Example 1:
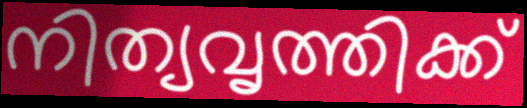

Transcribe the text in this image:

നിത്യവൃത്തിക്ക്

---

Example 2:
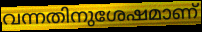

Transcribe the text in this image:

വന്നതിനുശേഷമാണ്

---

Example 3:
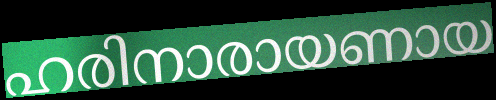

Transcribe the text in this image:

ഹരിനാരായണായ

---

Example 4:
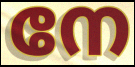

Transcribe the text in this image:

നേ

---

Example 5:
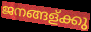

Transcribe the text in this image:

ജനങ്ങള്ക്കു